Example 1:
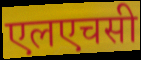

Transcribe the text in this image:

एलएचसी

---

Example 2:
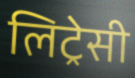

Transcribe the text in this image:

लिट्रेसी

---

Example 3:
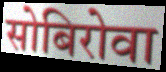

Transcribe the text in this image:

सोबिरोवा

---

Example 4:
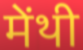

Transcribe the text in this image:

मेंथी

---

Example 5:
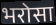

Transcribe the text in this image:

भरोसा